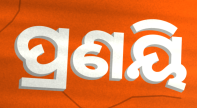
ପ୍ରଣୟି